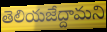
తెలియజేద్దామని